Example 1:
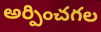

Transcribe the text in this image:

అర్పించగల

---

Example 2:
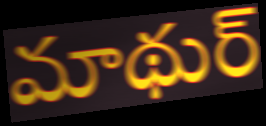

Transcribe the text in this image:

మాథుర్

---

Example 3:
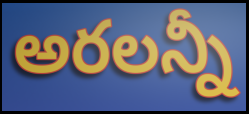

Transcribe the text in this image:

అరలన్నీ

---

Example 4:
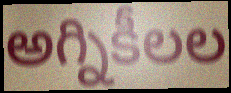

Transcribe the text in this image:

అగ్నికీలల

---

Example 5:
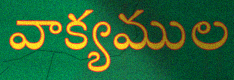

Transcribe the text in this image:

వాక్యముల